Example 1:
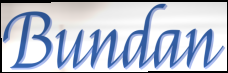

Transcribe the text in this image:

Bundan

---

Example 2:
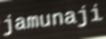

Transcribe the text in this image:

jamunaji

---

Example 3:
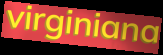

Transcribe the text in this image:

virginiana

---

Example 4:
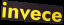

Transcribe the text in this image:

invece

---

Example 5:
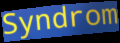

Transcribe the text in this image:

Syndrom